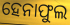
ହେନାଫୁଲ